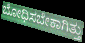
ಬೋಧಿಸಬೇಕಾಗಿತ್ತು